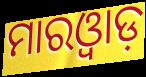
ମାରଓ୍ୱାଡ଼